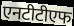
एनटीटीएफ